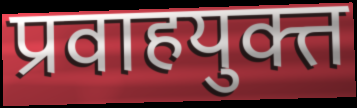
प्रवाहयुक्त